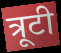
त्रूटी